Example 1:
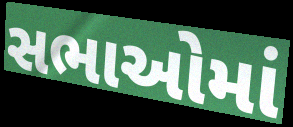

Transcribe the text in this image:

સભાઓમાં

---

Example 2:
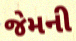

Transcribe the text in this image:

જેમની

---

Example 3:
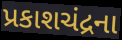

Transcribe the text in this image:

પ્રકાશચંદ્રના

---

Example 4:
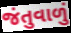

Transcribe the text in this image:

જંતુવાળું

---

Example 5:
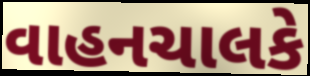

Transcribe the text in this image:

વાહનચાલકે